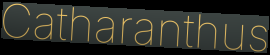
Catharanthus